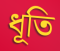
ধূতি